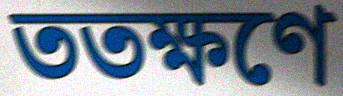
ততক্ষণে